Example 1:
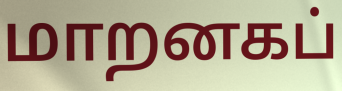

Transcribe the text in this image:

மாறனகப்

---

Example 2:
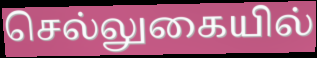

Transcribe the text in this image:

செல்லுகையில்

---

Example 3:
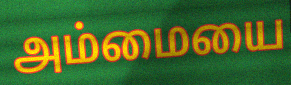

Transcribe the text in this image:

அம்மையை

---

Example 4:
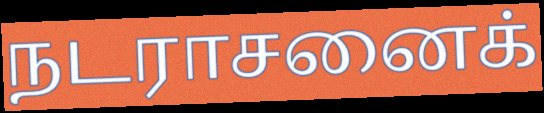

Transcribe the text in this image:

நடராசனைக்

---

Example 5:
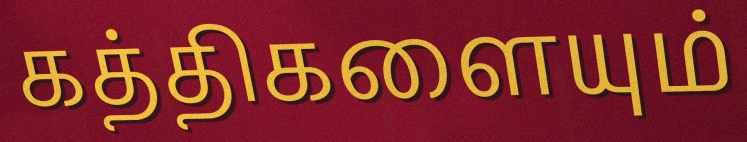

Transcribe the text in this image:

கத்திகளையும்